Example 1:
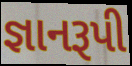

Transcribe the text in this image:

જ્ઞાનરૂપી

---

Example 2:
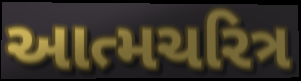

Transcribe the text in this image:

આત્મચરિત્ર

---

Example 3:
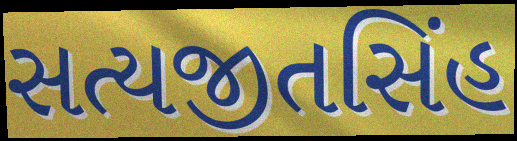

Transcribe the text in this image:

સત્યજીતસિંહ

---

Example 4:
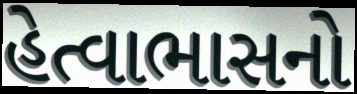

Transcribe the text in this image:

હેત્વાભાસનો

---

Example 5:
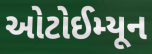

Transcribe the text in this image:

ઓટોઈમ્યૂન